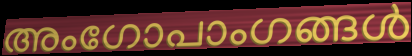
അംഗോപാംഗങ്ങൾ